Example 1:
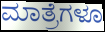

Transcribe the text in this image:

ಮಾತ್ರೆಗಳೂ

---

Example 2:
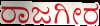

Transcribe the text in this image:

ರಾಜಗೀರ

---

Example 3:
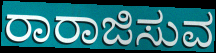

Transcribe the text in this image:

ರಾರಾಜಿಸುವ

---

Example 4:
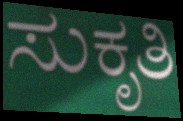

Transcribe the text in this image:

ಸುಕೃತಿ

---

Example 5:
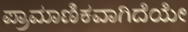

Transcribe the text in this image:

ಪ್ರಾಮಾಣಿಕವಾಗಿದೆಯೇ